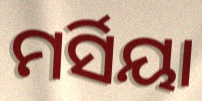
ମର୍ସିୟା